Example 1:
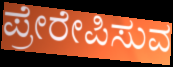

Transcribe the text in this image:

ಪ್ರೇರೇಪಿಸುವ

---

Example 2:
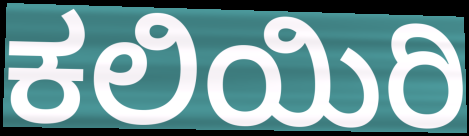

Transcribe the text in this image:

ಕಲಿಯಿರಿ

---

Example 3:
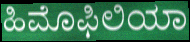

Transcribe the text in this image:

ಹಿಮೊಫಿಲಿಯಾ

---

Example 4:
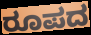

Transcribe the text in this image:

ರೂಪದ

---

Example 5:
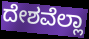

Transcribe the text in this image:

ದೇಶವೆಲ್ಲಾ